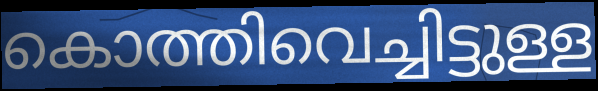
കൊത്തിവെച്ചിട്ടുള്ള